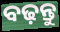
ବଢ଼ନ୍ତୁ